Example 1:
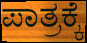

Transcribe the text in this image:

ಪಾತ್ರಕ್ಕೆ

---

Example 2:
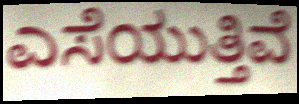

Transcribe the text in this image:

ಎಸೆಯುತ್ತಿವೆ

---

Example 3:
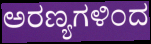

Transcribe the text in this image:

ಅರಣ್ಯಗಳಿಂದ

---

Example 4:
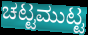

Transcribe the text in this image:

ಚಟ್ಟಮುಟ್ಟ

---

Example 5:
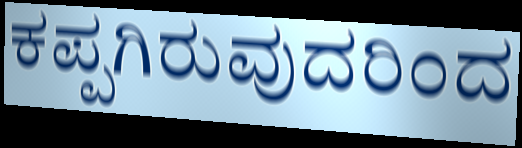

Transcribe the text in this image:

ಕಪ್ಪಗಿರುವುದರಿಂದ